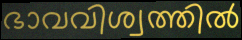
ഭാവവിശ്വത്തിൽ